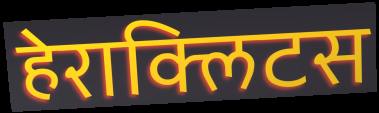
हेराक्लिटस